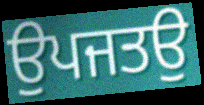
ਉਪਜਤਉ